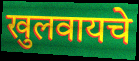
खुलवायचे